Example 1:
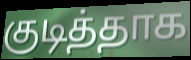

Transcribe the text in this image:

குடித்தாக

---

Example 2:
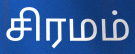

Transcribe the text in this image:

சிரமம்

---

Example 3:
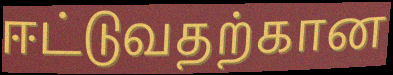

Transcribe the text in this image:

ஈட்டுவதற்கான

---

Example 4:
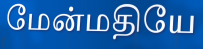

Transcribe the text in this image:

மேன்மதியே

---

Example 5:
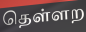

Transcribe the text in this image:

தெள்ளற